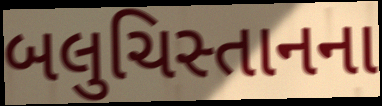
બલુચિસ્તાનના